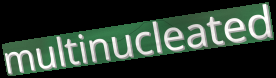
multinucleated